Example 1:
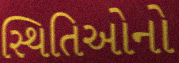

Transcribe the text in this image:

સ્થિતિઓનો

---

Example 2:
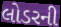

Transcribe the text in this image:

લોડરની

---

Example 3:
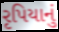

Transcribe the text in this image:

રૃપિયાનું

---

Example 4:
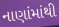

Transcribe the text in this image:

નાણાંમાંથી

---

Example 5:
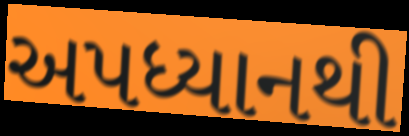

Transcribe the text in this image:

અપધ્યાનથી